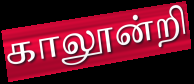
காலூன்றி